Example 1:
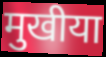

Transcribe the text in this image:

मुखीया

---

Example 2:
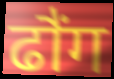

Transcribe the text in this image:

ढौंग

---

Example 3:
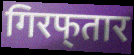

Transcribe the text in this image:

गिरफ्‌तार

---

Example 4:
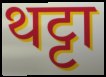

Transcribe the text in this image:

थट्टा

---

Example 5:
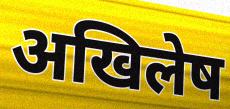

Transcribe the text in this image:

अखिलेष